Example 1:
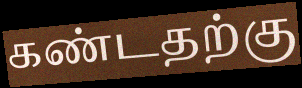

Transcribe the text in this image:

கண்டதற்கு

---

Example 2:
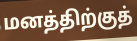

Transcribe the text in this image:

மனத்திற்குத்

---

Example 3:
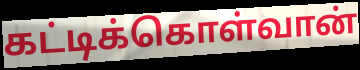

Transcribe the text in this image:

கட்டிக்கொள்வான்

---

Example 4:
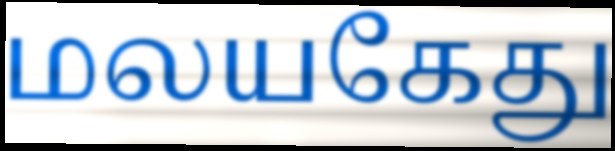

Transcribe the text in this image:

மலயகேது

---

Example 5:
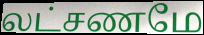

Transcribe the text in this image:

லட்சணமே